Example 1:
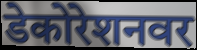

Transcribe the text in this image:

डेकोरेशनवर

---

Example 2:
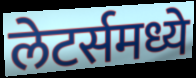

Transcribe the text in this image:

लेटर्समध्ये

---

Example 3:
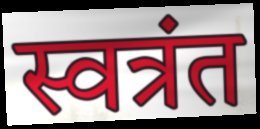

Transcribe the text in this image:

स्वत्रंत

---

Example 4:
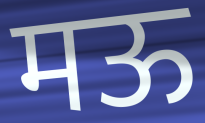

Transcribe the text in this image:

मऊ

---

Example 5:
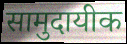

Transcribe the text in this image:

सामुदायीक